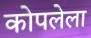
कोपलेला